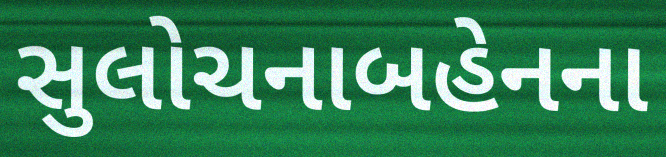
સુલોચનાબહેનના